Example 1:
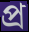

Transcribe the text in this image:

প্ৰ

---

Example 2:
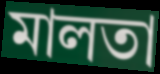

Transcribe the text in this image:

মালতা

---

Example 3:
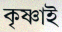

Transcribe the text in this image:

কৃষ্ণাই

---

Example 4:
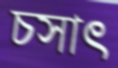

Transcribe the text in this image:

চসাৎ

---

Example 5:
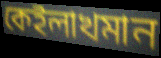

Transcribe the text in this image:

কেইলাখমান